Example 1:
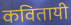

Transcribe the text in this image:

कवितायी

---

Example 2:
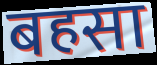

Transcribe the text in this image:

बहसा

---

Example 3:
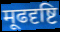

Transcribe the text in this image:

मूढदृष्टि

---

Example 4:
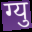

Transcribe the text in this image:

ग्यु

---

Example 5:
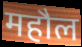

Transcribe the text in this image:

महौल